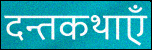
दन्तकथाएँ